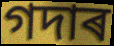
গদাৰ